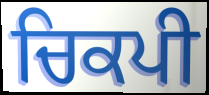
ਚਿਕਪੀ